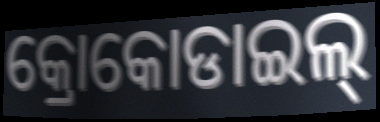
କ୍ରୋକୋଡାଇଲ୍